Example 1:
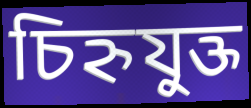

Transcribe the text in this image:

চিহ্নযুক্ত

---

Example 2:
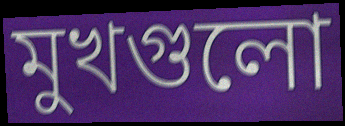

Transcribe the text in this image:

মুখগুলো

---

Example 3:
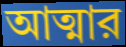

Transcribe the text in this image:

আত্মার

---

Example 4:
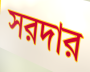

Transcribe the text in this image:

সরদার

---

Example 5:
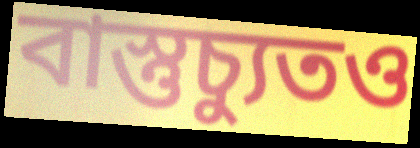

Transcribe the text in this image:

বাস্তুচ্যুতও